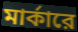
মার্কারে